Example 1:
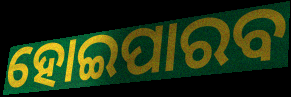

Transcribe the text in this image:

ହୋଇପାରବ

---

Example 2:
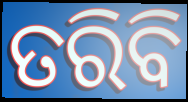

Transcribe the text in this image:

ତରିବି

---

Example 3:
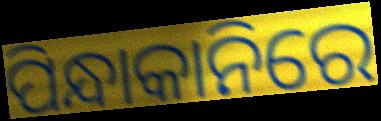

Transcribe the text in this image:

ପିନ୍ଧାକାନିରେ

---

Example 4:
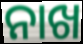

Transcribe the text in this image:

ନାଖ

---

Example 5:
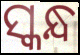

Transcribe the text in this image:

ସ୍କନ୍ଧ